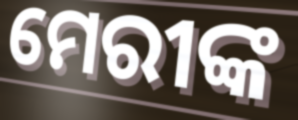
ମେରୀଙ୍କ